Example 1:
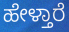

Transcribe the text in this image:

ಹೇಳ್ತಾರೆ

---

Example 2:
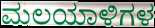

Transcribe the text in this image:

ಮಲಯಾಳಿಗಳ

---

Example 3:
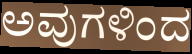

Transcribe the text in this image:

ಅವುಗಳಿಂದ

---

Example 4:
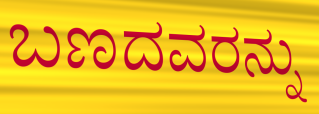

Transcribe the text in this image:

ಬಣದವರನ್ನು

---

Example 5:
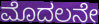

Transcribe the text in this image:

ಮೊದಲನೇ